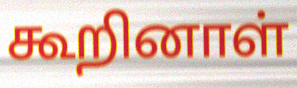
கூறினாள்